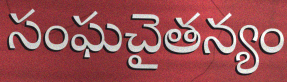
సంఘచైతన్యం